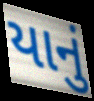
યાનું